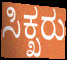
ಸಿಕ್ಖರು